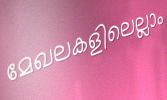
മേഖലകളിലെല്ലാം